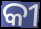
କୀ